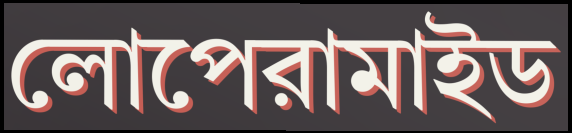
লোপেরামাইড